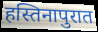
हस्तिनापुरात